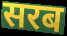
सरब